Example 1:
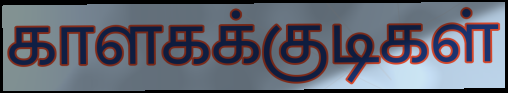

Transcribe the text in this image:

காளகக்குடிகள்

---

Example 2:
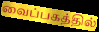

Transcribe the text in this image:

வைப்பகத்தில்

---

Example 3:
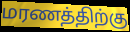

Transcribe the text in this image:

மரணத்திற்கு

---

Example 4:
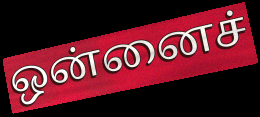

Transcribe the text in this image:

ஒன்னைச்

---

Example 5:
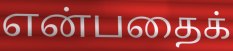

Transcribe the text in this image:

என்பதைக்